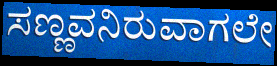
ಸಣ್ಣವನಿರುವಾಗಲೇ